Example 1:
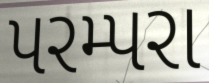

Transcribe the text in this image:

પરમ્પરા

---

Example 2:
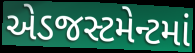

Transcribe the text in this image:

એડજસ્ટમેન્ટમાં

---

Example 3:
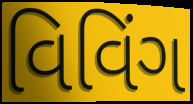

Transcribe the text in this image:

વિવિંગ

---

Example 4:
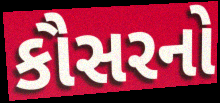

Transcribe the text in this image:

કૌસરનો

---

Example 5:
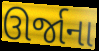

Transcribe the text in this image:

ઊર્જાના